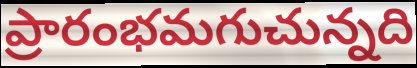
ప్రారంభమగుచున్నది